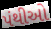
પંથીઓ